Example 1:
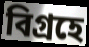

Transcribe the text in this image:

বিগ্রহে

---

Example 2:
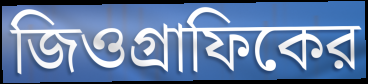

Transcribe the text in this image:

জিওগ্রাফিকের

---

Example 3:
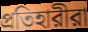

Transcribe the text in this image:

প্রতিহারীরা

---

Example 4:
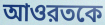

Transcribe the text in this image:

আওরতকে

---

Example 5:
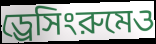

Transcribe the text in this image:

ড্রেসিংরুমেও